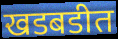
खडबडीत